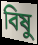
বিষু